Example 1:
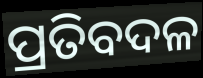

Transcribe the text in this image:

ପ୍ରତିବଦଳ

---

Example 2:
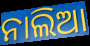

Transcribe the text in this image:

ନାଲିଆ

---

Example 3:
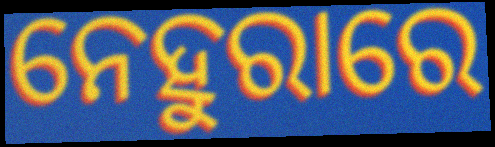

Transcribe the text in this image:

ନେହୁରାରେ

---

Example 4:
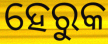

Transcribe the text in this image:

ହେରୁକ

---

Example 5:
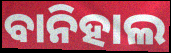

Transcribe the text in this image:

ବାନିହାଲ